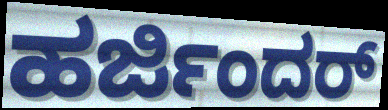
ಹರ್ಜಿಂದರ್